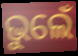
ଭୁଲେଁ